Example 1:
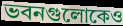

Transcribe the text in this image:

ভবনগুলোকেও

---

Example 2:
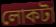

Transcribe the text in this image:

লোকটা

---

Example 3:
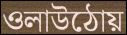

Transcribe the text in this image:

ওলাউঠোয়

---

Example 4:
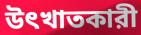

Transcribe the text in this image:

উৎখাতকারী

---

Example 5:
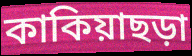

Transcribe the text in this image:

কাকিয়াছড়া